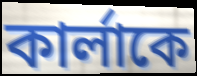
কার্লাকে